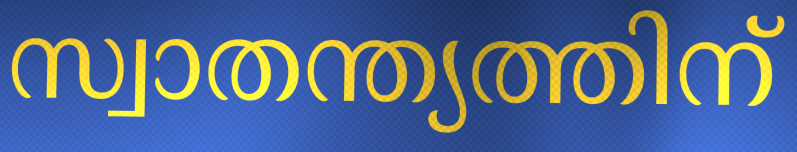
സ്വാതന്ത്യത്തിന്